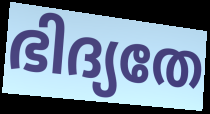
ഭിദ്യതേ